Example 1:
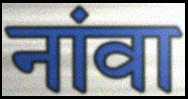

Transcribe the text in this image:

नांवा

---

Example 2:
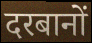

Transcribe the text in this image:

दरबानों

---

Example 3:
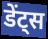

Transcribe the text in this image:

डेंट्स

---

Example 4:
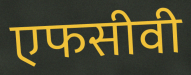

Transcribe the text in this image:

एफसीवी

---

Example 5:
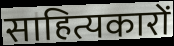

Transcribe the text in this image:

साहित्यकारों